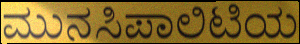
ಮುನಸಿಪಾಲಿಟಿಯ